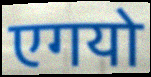
एगयो